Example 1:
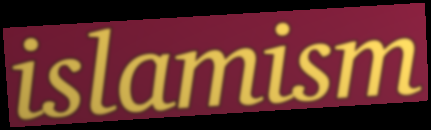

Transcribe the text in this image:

islamism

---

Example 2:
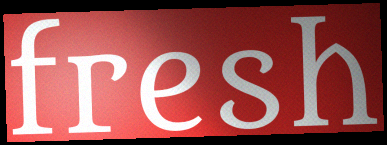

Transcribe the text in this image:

fresh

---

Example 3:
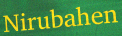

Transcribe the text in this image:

Nirubahen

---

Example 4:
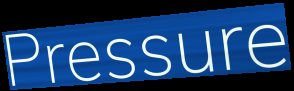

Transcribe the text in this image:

Pressure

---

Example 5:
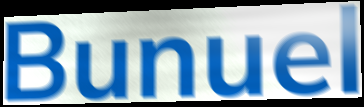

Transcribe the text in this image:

Bunuel